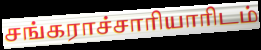
சங்கராச்சாரியாரிடம்